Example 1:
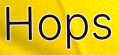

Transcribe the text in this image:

Hops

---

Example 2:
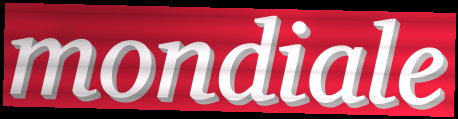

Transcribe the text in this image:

mondiale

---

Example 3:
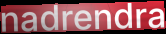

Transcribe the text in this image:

nadrendra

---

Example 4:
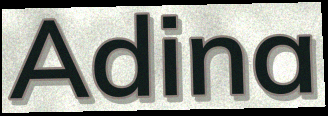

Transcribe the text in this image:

Adina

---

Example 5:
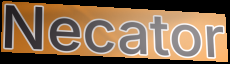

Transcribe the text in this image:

Necator